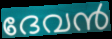
ദേവൻ